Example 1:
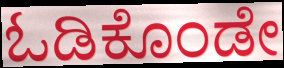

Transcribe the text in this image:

ಓಡಿಕೊಂಡೇ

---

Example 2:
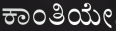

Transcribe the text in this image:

ಕಾಂತಿಯೇ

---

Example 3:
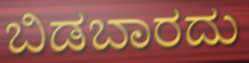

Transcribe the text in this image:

ಬಿಡಬಾರದು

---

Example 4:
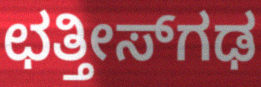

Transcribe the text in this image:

ಛತ್ತೀಸ್‍ಗಢ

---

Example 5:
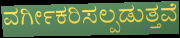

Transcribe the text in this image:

ವರ್ಗೀಕರಿಸಲ್ಪಡುತ್ತವೆ